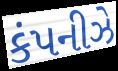
કંપનીઝે